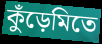
কুঁড়েমিতে